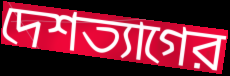
দেশত্যাগের